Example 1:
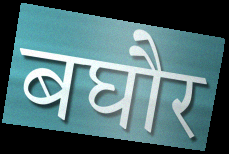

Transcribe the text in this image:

बघौर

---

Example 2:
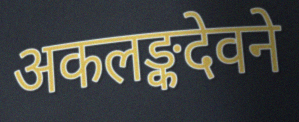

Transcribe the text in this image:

अकलङ्कदेवने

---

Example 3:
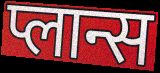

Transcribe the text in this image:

प्लान्स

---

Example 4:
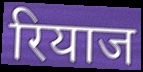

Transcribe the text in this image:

रियाज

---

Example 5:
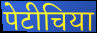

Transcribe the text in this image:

पेटीचिया